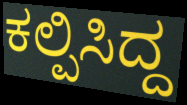
ಕಲ್ಪಿಸಿದ್ದ